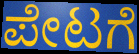
ಪೇಟಗೆ